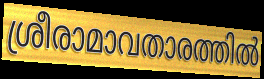
ശ്രീരാമാവതാരത്തിൽ